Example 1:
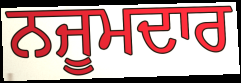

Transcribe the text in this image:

ਨਜੂਮਦਾਰ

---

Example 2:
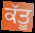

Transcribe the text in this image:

ਕੱਤੂ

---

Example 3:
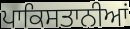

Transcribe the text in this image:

ਪਾਕਿਸਤਾਨੀਆਂ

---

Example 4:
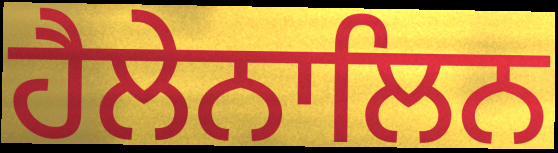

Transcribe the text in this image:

ਹੈਲੇਨਾਲਿਨ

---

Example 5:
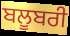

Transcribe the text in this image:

ਬਲੂਬਰੀ